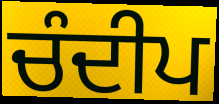
ਚੰਦੀਪ